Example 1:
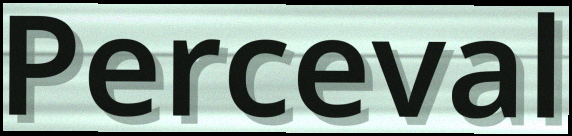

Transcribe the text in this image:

Perceval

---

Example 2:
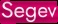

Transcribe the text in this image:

Segev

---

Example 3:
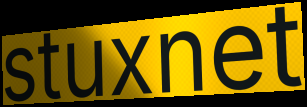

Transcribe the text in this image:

stuxnet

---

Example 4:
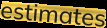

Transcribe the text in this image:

estimates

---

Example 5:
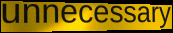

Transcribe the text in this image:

unnecessary